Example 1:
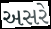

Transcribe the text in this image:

અસરે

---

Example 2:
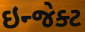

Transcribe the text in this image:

ઇન્જેક્ટ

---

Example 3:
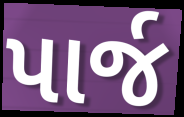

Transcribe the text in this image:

પાર્જ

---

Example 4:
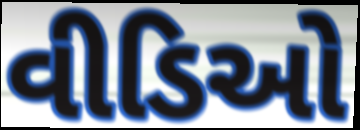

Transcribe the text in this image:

વીડિઓ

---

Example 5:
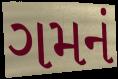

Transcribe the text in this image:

ગમનં